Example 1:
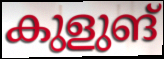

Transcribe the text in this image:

കുളുങ്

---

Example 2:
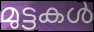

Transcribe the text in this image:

മുട്ടകൾ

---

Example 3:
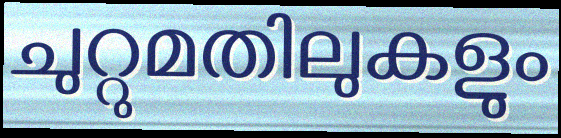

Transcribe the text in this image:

ചുറ്റുമതിലുകളും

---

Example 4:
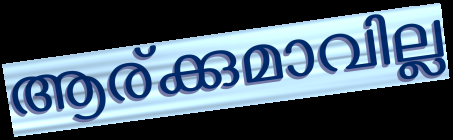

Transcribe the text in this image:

ആര്ക്കുമാവില്ല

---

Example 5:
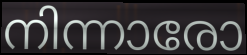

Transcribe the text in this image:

നിന്നാരോ